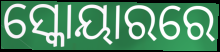
ସ୍କୋୟାରରେ